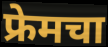
फ्रेमचा